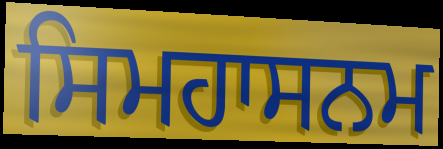
ਸਿਮਹਾਸਨਮ